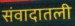
संवादातली